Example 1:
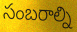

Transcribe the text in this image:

సంబరాల్ని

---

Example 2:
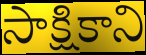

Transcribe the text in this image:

సాక్షికాని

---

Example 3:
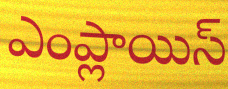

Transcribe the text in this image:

ఎంప్లాయిస్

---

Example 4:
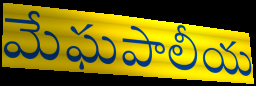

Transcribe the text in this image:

మేఘపాలీయ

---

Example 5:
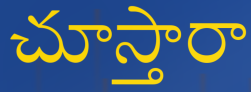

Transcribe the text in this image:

చూస్తారా